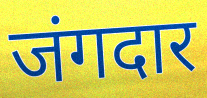
जंगदार